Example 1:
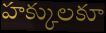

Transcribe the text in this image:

హక్కులకూ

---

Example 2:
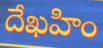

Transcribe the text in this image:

దేఖహిం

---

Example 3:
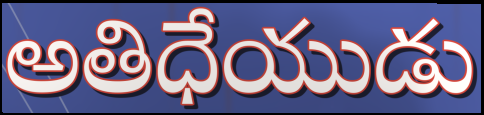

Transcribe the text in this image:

అతిధేయుడు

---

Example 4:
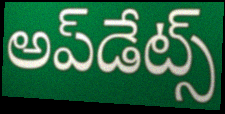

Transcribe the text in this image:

అప్‌డేట్స్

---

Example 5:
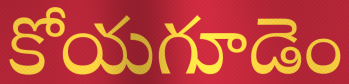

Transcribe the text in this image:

కోయగూడెం